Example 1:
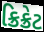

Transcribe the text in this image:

ક્રિક્રેટ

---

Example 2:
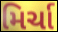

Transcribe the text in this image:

મિર્ચા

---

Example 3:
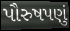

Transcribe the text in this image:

પૌરુષપણું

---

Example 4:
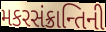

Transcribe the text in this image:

મકરસંક્રાન્તિની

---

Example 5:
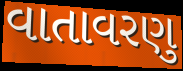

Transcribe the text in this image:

વાતાવરણુ